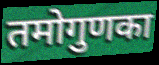
तमोगुणका